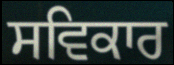
ਸਵਿਕਾਰ